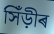
সিঁড়ীৰ